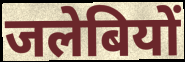
जलेबियों